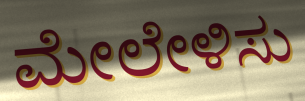
ಮೇಲೇಳಿಸು